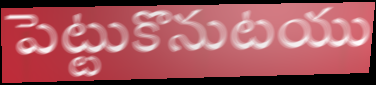
పెట్టుకొనుటయు